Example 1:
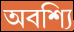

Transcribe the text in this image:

অবশ্যি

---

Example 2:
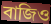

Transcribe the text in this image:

বাজিও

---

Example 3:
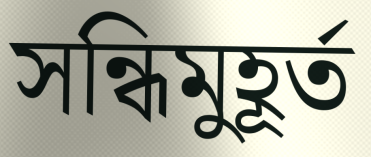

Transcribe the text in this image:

সন্ধিমুহূর্ত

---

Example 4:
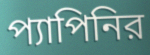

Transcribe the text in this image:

প্যাপিনির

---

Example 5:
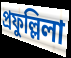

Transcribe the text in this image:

প্রফুল্লিলা